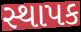
સ્થાપક